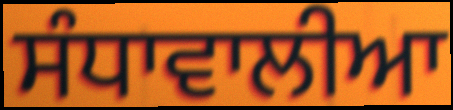
ਸੰਧਾਵਾਲੀਆ